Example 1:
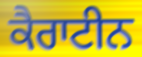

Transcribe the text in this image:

ਕੈਰਾਟੀਨ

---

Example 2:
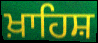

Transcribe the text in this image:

ਖ਼ਾਹਿਸ਼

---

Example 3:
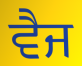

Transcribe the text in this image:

ਵੈਜ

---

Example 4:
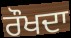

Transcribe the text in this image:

ਰੌਖਦਾ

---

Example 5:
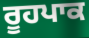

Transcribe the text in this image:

ਰੂਹਪਾਕ